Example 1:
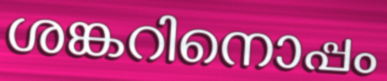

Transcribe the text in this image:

ശങ്കറിനൊപ്പം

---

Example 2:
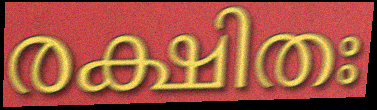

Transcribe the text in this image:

രക്ഷിതഃ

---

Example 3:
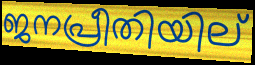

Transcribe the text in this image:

ജനപ്രീതിയില്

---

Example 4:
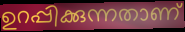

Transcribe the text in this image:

ഉറപ്പിക്കുന്നതാണ്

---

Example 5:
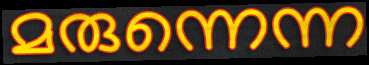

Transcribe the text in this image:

മരുന്നെന്ന